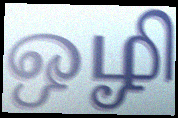
ஒழி